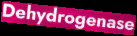
Dehydrogenase